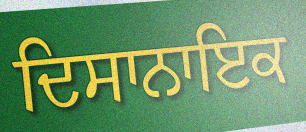
ਦਿਸਾਨਾਇਕ